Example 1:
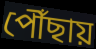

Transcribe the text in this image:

পৌঁছায়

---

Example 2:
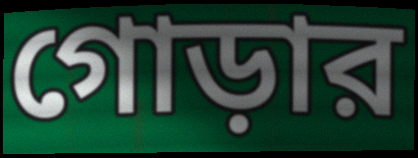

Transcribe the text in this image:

গোড়ার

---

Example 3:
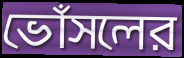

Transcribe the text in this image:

ভোঁসলের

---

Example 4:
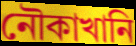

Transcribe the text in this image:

নৌকাখানি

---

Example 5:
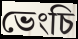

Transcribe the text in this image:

ভেংচি